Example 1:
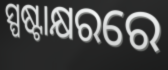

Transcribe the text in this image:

ସ୍ପଷ୍ଟାକ୍ଷରରେ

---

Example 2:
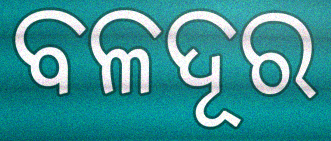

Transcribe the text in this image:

ବଳଦୂର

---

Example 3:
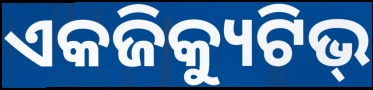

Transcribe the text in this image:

ଏକଜିକ୍ୟୁଟିଭ୍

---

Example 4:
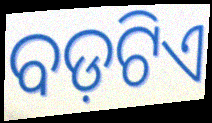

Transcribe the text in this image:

ବଡ଼ଟିଏ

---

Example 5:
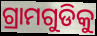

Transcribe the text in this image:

ଗ୍ରାମଗୁଡିକୁ